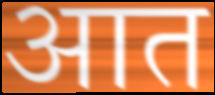
आत